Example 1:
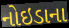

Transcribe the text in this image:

નોઇડાના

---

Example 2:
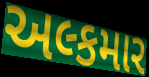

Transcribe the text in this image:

અલ્કમાર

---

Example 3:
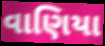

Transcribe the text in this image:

વાણિયા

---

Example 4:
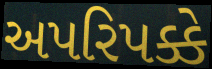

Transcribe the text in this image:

અપરિપક્કે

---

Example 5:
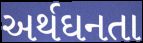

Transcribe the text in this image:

અર્થઘનતા